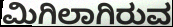
ಮಿಗಿಲಾಗಿರುವ